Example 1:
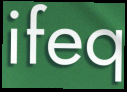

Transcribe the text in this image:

ifeq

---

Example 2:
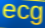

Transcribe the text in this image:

ecg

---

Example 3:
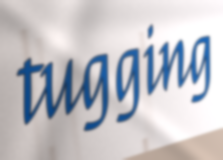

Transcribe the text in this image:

tugging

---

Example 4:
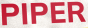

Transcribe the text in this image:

PIPER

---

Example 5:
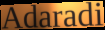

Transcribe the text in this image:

Adaradi